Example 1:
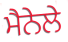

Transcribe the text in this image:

ਮੈਨੇਲੇ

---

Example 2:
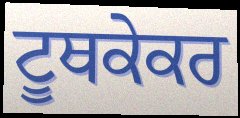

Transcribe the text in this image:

ਟੂਥਕੇਕਰ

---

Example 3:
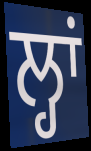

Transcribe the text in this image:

ਲ੍ਹਾਂ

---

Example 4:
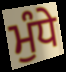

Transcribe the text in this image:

ਮੁੰਧੇ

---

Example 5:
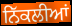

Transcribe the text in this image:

ਨਿੱਕਲੀਆਂ